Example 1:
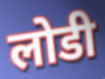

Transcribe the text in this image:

लोडी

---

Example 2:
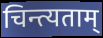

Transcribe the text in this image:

चिन्त्यताम्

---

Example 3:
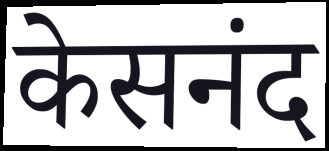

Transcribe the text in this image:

केसनंद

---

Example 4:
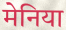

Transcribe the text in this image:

मेनिया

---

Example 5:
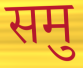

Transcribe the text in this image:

समु